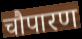
चौपारण